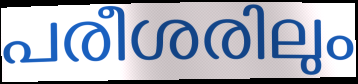
പരീശരിലും